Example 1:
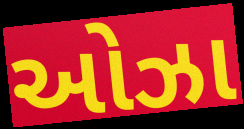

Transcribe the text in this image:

ઓઝા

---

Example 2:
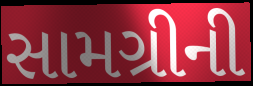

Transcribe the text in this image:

સામગ્રીની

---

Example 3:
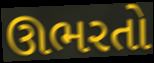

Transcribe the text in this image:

ઊભરતો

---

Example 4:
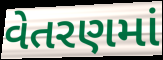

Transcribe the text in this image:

વેતરણમાં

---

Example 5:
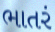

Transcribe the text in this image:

ભાતરં